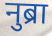
नुब्रा